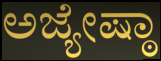
ಅಜ್ಯೇಷ್ಠಾ